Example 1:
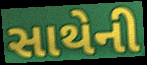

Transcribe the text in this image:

સાથેની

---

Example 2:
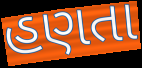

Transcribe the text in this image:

હણતા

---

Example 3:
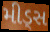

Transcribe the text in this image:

મીડ્સ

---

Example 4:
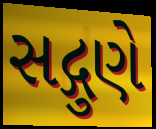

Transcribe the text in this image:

સદ્ગુણે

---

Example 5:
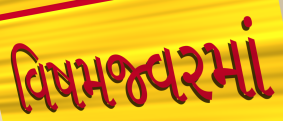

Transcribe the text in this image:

વિષમજ્વરમાં